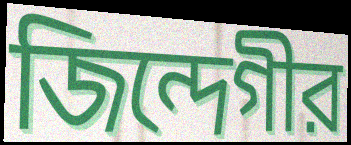
জিন্দেগীর